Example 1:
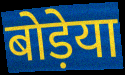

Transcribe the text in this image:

बोड़ेया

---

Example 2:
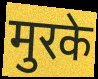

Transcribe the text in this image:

मुरके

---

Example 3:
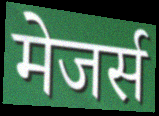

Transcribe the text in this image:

मेजर्स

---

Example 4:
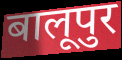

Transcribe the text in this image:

बालूपुर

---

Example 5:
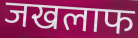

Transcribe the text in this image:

जखलाफ